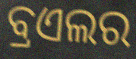
ବ୍ରଏଲର